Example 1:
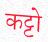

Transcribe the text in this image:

कट्टो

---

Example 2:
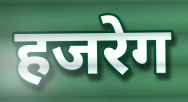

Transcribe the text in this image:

हजरेग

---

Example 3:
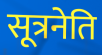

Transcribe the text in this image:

सूत्रनेति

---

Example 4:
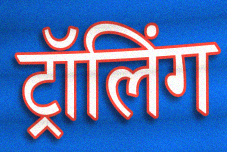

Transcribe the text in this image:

ट्रॉलिंग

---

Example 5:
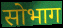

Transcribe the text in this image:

सोभाग